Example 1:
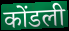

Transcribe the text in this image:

कोंडली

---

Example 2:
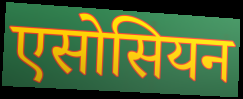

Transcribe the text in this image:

एसोसियन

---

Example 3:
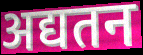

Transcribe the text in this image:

अद्यतन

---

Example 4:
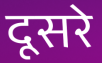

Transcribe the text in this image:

दूसरे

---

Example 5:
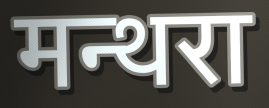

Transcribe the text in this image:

मन्थरा